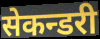
सेकन्डरी